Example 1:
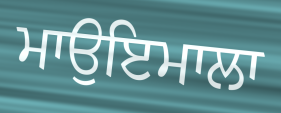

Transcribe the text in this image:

ਮਾਉਇਮਾਲਾ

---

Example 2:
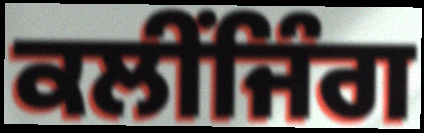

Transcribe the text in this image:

ਕਲੀਂਜਿੰਗ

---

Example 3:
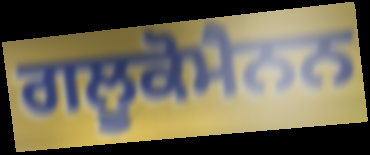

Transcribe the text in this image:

ਗਲੂਕੋਮੈਨਨ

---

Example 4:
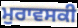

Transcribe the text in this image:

ਮੁਰਾਵਸਕੀ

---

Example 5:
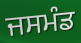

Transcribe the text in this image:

ਜਸਮੰਡ